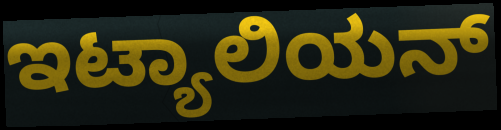
ಇಟ್ಯಾಲಿಯನ್